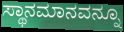
ಸ್ಥಾನಮಾನವನ್ನೂ